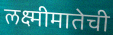
लक्ष्मीमातेची